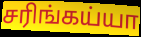
சரிங்கய்யா